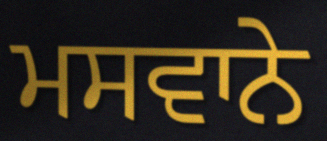
ਮਸਵਾਨੇ